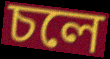
চলে